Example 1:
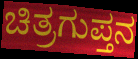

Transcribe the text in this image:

ಚಿತ್ರಗುಪ್ತನ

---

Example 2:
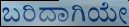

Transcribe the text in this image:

ಬರಿದಾಗಿಯೇ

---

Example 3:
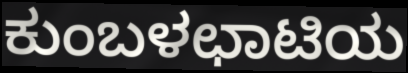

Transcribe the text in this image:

ಕುಂಬಳಛಾಟಿಯ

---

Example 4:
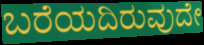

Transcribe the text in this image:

ಬರೆಯದಿರುವುದೇ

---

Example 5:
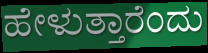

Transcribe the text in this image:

ಹೇಳುತ್ತಾರೆಂದು